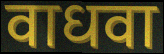
वाधवा